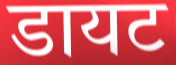
डायट